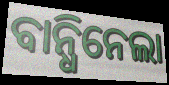
ବାନ୍ଧିନେଲା